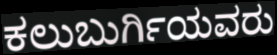
ಕಲುಬುರ್ಗಿಯವರು